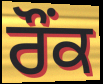
ਰੌਂਕ